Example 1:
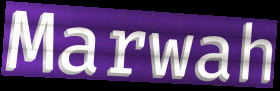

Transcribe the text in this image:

Marwah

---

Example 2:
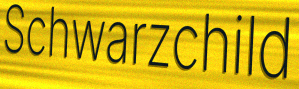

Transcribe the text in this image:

Schwarzchild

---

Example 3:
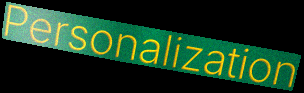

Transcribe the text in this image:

Personalization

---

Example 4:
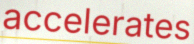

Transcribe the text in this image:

accelerates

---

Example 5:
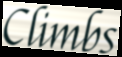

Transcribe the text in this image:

Climbs